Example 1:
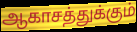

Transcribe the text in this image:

ஆகாசத்துக்கும்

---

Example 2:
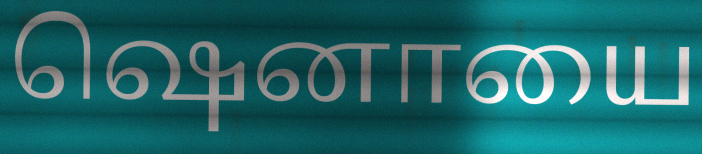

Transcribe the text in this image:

ஷெனாயை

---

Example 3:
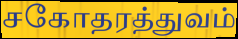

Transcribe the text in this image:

சகோதரத்துவம்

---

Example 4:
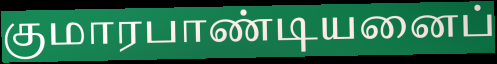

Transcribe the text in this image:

குமாரபாண்டியனைப்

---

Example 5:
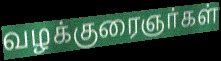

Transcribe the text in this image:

வழக்குரைஞர்கள்